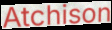
Atchison